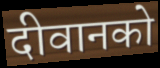
दीवानको